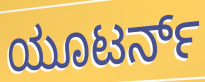
ಯೂಟರ್ನ್